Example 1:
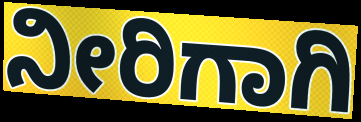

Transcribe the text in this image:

ನೀರಿಗಾಗಿ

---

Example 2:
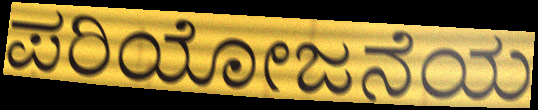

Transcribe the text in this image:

ಪರಿಯೋಜನೆಯ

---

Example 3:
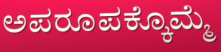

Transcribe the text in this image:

ಅಪರೂಪಕ್ಕೊಮ್ಮೆ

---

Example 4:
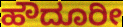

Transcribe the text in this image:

ಹೌದೂರೀ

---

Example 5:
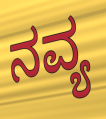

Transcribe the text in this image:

ನವ್ಯ